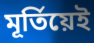
মূৰ্তিয়েই